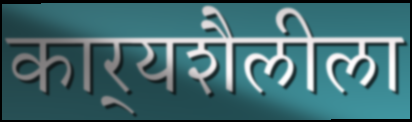
कार्यशैलीला